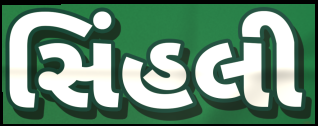
સિંહલી